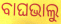
ବାଘଭାଲୁ